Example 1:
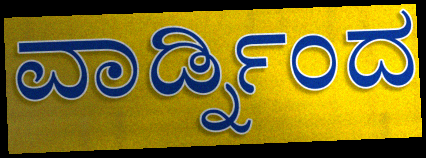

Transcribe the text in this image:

ವಾರ್ಡ್ನಿಂದ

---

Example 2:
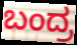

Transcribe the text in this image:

ಬಂದ್ರ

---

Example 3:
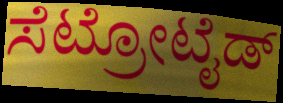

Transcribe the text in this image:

ಸೆಟ್ರೋಟೈಡ್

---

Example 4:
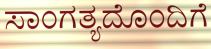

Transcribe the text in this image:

ಸಾಂಗತ್ಯದೊಂದಿಗೆ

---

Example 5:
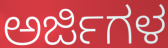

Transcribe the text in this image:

ಅರ್ಜಿಗಳ